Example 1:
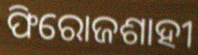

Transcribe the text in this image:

ଫିରୋଜଶାହୀ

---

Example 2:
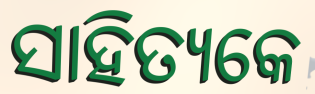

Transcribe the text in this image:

ସାହିତ୍ୟକେ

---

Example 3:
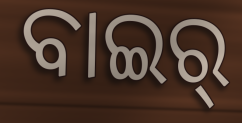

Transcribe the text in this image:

ବାଇର୍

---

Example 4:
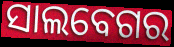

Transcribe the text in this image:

ସାଲବେଗର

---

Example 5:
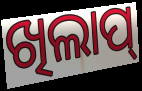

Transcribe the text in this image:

ଖିଲାପ୍